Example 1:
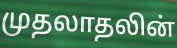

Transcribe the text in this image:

முதலாதலின்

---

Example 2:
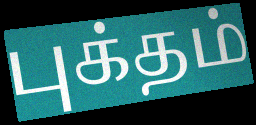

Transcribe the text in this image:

புக்தம்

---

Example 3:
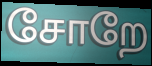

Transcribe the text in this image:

சோறே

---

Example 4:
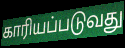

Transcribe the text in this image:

காரியப்படுவது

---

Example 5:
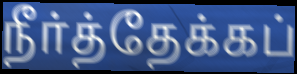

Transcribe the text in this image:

நீர்த்தேக்கப்